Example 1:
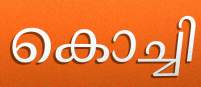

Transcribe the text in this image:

കൊച്ചി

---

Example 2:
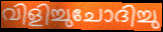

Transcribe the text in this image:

വിളിച്ചുചോദിച്ചു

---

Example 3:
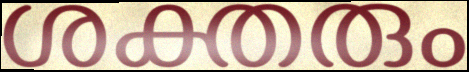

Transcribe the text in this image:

ശക്തരും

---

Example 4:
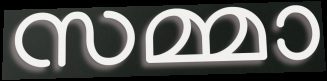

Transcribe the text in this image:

സമ്മാ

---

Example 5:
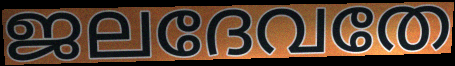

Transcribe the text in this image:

ജലദേവതേ